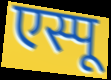
एस्पू